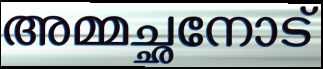
അമ്മച്ഛനോട്